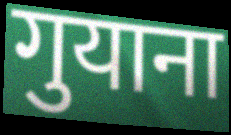
गुयाना